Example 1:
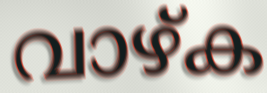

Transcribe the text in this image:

വാഴ്ക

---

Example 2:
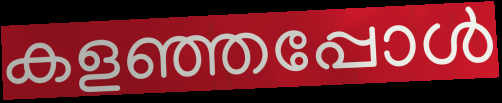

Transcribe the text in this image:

കളഞ്ഞപ്പോൾ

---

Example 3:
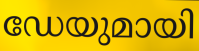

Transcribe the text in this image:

ഡേയുമായി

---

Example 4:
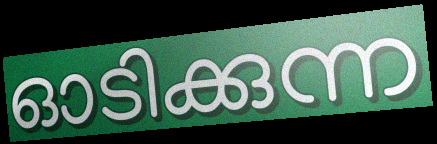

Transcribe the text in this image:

ഓടിക്കുന്ന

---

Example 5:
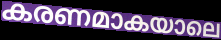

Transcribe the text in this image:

കരണമാകയാലെ